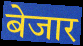
बेजार